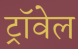
ट्रॉवेल